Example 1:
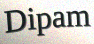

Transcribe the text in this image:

Dipam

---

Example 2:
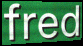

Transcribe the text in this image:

fred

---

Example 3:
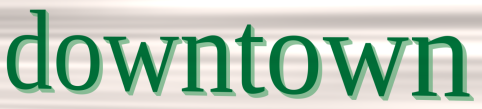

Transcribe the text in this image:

downtown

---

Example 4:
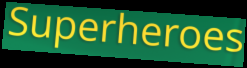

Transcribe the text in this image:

Superheroes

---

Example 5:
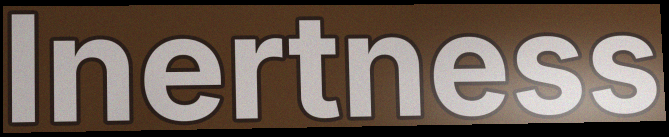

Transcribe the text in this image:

Inertness